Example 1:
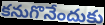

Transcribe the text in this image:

కనుగొనేందుకు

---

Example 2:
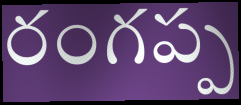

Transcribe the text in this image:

రంగప్ప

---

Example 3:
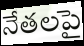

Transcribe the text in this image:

నేతలపై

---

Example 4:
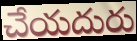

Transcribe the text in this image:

చేయదురు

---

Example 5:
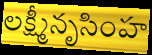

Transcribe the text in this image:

లక్ష్మీనృసింహ